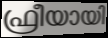
ഫ്രീയായി